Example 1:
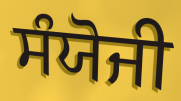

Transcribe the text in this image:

ਸੰਯੋਜੀ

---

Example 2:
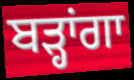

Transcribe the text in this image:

ਬੜ੍ਹਾਂਗਾ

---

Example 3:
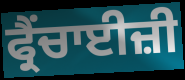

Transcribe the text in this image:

ਫ੍ਰੈਂਚਾਈਜ਼ੀ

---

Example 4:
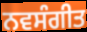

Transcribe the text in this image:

ਨਵਸੰਗੀਤ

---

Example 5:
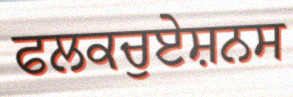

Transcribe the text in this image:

ਫਲਕਚੁਏਸ਼ਨਸ